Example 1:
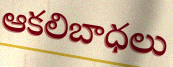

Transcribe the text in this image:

ఆకలిబాధలు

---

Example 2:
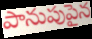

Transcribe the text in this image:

పానుపుపైన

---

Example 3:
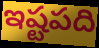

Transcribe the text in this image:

ఇష్టపది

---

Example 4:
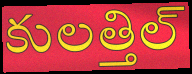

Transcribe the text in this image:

కులత్తిల్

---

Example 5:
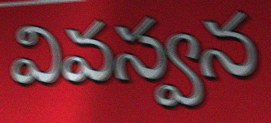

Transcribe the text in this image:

వివస్వన